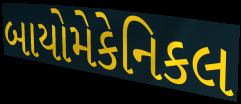
બાયોમેકેનિકલ